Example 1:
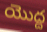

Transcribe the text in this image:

యొద్ద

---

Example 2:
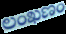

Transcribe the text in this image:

లంఖణం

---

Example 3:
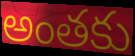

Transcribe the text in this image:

అంతకు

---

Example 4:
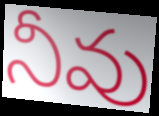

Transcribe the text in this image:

నీవు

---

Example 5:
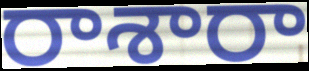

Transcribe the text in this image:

రాశారా